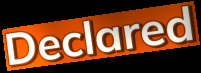
Declared